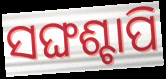
ସଙ୍ଘଶ୍ଚାପି